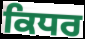
ਕਿਧਰ